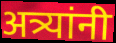
अत्र्यांनी